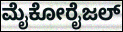
ಮೈಕೋರೈಜಲ್